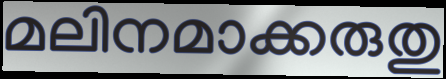
മലിനമാക്കരുതു